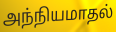
அந்நியமாதல்